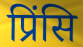
प्रिंसि